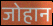
जोहान